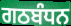
ਗਠਬੰਧਨ